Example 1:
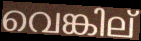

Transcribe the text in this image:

വെങ്കില്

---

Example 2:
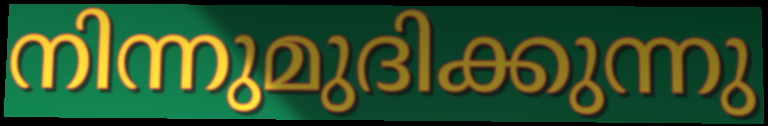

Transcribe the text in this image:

നിന്നുമുദിക്കുന്നു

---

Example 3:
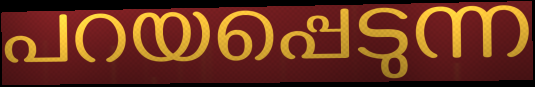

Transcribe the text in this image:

പറയപ്പെടുന്ന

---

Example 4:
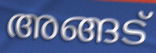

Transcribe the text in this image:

അങ്ങട്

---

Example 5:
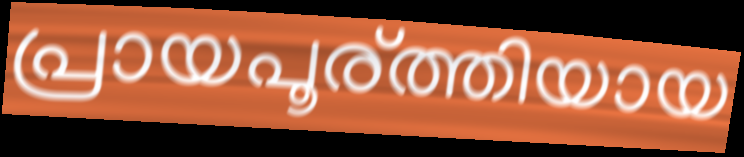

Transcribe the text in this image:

പ്രായപൂര്ത്തിയായ